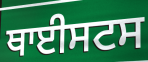
ਥਾਈਸਟਸ